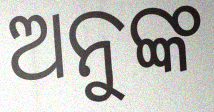
ଅନୁଙ୍କ